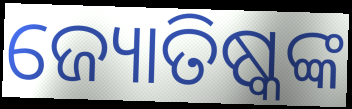
ଜ୍ୟୋତିଷ୍କଙ୍କ